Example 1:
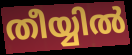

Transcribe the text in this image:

തീയ്യിൽ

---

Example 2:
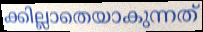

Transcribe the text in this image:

ക്കില്ലാതെയാകുന്നത്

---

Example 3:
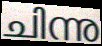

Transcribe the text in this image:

ചിന്നു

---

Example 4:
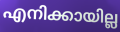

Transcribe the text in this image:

എനിക്കായില്ല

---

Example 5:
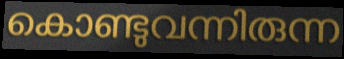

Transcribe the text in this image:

കൊണ്ടുവന്നിരുന്ന